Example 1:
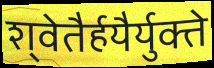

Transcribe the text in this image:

श्वेतैर्हयैर्युक्ते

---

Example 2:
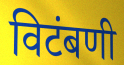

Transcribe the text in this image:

विटंबणी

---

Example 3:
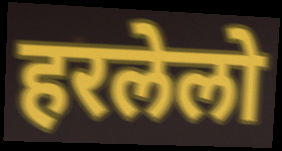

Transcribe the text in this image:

हरलेलो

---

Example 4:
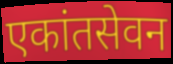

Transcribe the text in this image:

एकांतसेवन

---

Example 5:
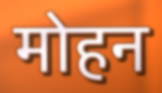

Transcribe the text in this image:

मोहन